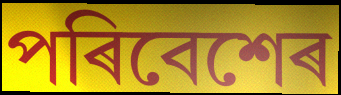
পৰিবেশেৰ